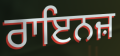
ਰਾਇਨਜ਼